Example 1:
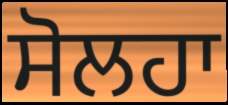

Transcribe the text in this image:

ਸੋਲਹਾ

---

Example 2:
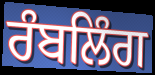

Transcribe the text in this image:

ਰੰਬਲਿੰਗ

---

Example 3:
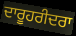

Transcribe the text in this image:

ਦਾਰੂਹਰੀਦਰਾ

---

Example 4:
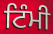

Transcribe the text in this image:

ਟਿੰਮੀ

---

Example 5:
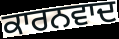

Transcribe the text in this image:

ਕਾਰਨਵਾਦ